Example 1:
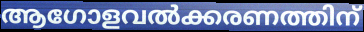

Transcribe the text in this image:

ആഗോളവൽക്കരണത്തിന്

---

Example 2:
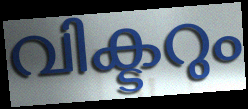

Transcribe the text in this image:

വിക്ടറും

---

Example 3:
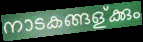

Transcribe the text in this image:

നാടകങ്ങള്ക്കും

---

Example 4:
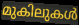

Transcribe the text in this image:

മുകിലുകൾ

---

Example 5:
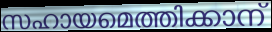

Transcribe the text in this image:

സഹായമെത്തിക്കാന്